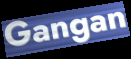
Gangan